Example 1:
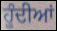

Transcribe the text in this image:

ਹੂੰਦੀਆਂ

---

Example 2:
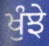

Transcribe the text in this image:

ਖੁੰਝੇ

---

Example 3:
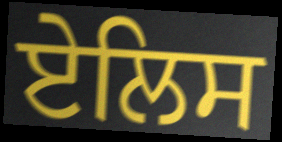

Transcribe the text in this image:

ਏਲਿਸ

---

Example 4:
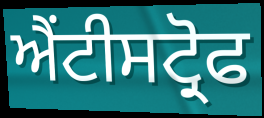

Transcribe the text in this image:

ਐਂਟੀਸਟ੍ਰੋਫ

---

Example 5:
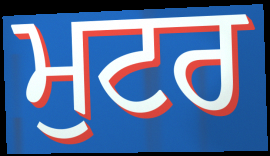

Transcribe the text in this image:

ਮੁਟਰ